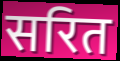
सरित